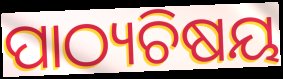
ପାଠ୍ୟଚିଷୟ